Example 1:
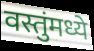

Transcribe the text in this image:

वस्तुंमध्ये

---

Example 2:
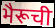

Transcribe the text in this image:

भैरूची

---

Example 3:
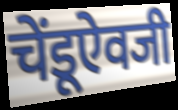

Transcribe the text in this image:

चेंडूऐवजी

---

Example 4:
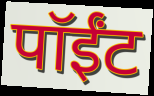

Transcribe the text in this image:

पॉईंट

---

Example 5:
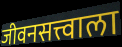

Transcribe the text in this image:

जीवनसत्त्वाला